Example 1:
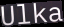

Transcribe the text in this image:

Ulka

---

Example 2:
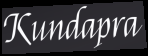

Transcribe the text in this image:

Kundapra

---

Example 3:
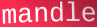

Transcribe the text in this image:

mandle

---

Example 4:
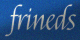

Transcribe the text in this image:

frineds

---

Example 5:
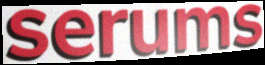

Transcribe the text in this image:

serums